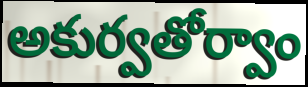
అకుర్వతోర్వాం